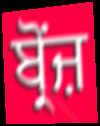
ਬ੍ਰੋਂਜ਼